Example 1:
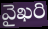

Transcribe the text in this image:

వైఖరి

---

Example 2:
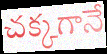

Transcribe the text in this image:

చక్కగానే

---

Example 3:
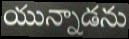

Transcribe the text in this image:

యున్నాడను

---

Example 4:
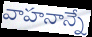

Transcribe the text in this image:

వాహనాన్నే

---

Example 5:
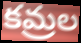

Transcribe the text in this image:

కమ్రల